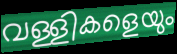
വള്ളികളെയും